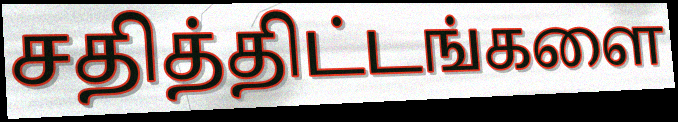
சதித்திட்டங்களை